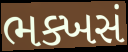
ભક્ખસં